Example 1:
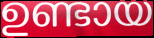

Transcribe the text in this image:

ഉണ്ടായ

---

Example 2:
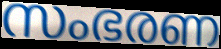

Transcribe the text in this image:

സംഭരണ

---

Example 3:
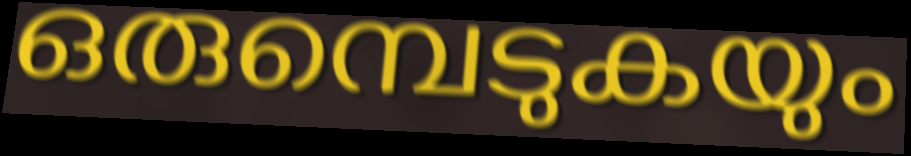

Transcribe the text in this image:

ഒരുമ്പെടുകയും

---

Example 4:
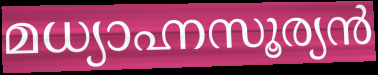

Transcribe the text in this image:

മധ്യാഹ്നസൂര്യൻ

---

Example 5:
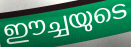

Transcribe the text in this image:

ഈച്ചയുടെ